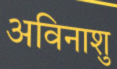
अविनाशु